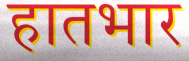
हातभार